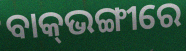
ବାକ୍‍ଭଙ୍ଗୀରେ